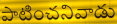
పాటించనివాడు